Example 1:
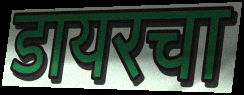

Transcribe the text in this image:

डायरचा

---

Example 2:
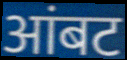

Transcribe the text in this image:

आंबट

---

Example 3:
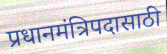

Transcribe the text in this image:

प्रधानमंत्रिपदासाठी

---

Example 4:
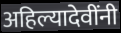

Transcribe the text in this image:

अहिल्यादेवींनी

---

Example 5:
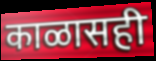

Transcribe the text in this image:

काळासही